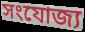
সংযোজ্য